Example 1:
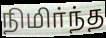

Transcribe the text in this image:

நிமிர்ந்த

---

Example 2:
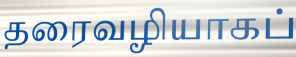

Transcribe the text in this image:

தரைவழியாகப்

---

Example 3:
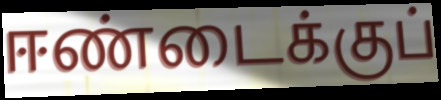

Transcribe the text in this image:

ஈண்டைக்குப்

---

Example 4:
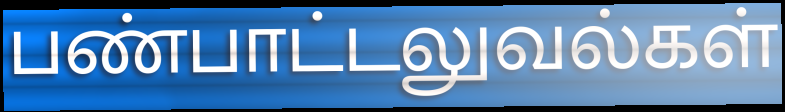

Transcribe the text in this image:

பண்பாட்டலுவல்கள்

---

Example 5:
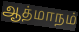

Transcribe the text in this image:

ஆத்மாநம்